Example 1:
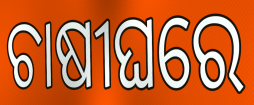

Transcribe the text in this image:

ଚାଷୀଘରେ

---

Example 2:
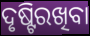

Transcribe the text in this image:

ଦୃଷ୍ଟିରଖିବା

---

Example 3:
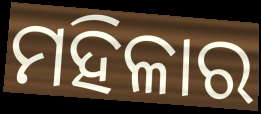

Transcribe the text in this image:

ମହିଳାର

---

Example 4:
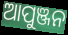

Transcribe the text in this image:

ଆପୁଞ୍ଜନ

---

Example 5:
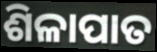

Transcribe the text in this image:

ଶିଳାପାତ